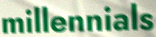
millennials